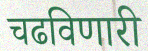
चढविणारी